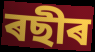
ৰছীৰ